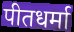
पीतधर्मा